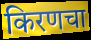
किरणचा